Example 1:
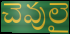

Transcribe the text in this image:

చెవులై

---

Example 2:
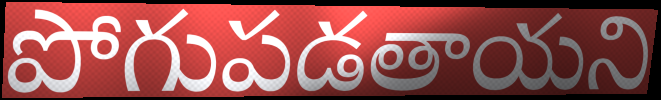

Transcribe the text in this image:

పోగుపడతాయని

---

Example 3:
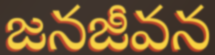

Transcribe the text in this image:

జనజీవన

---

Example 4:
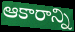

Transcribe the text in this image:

ఆకారాన్ని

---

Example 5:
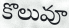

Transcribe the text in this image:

కొలువూ